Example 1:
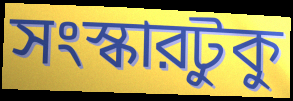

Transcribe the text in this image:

সংস্কারটুকু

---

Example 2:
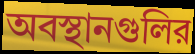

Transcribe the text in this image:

অবস্থানগুলির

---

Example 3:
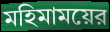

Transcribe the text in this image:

মহিমাময়ের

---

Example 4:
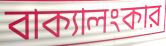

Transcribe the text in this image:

বাক্যালংকার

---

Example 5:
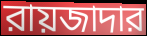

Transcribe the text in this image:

রায়জাদার